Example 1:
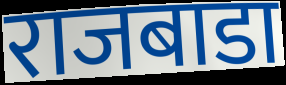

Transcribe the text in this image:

राजबाडा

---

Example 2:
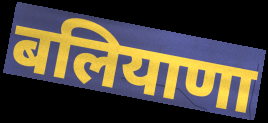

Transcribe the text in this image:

बलियाणा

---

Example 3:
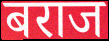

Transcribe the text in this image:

बराज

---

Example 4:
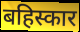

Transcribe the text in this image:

बहिस्कार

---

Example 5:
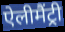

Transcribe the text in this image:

ऐलीमैंट्री